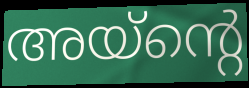
അയ്ന്റെ